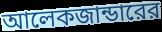
আলেকজান্ডারের